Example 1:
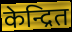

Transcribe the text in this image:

केन्द्रित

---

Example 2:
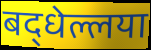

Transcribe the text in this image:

बद्धेल्लया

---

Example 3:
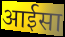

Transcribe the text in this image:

आईसा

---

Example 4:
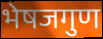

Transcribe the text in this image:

भेषजगुण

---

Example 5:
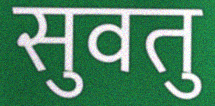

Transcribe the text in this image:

सुवतु